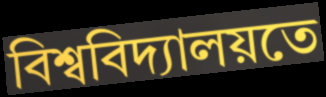
বিশ্ববিদ্যালয়তে